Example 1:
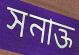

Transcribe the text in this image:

সনাক্ত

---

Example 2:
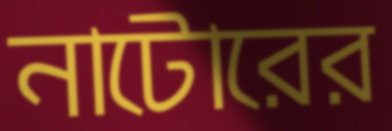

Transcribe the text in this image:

নাটোরের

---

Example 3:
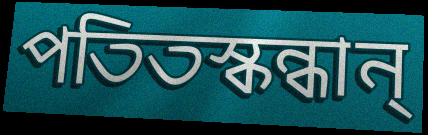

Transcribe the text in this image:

পতিতস্কন্ধান্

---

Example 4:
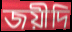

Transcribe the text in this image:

জয়ীদি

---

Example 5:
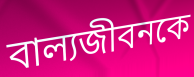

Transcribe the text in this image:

বাল্যজীবনকে